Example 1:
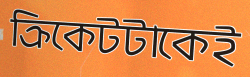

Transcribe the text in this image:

ক্রিকেটটাকেই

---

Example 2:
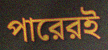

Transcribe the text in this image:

পারেরই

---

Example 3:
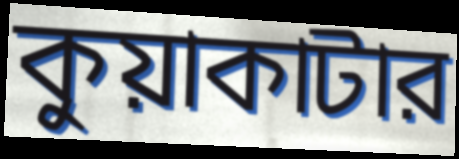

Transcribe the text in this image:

কুয়াকাটার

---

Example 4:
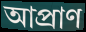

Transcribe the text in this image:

আপ্রাণ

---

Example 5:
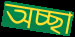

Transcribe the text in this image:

অচ্ছা